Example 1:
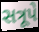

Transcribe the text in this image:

સત્રૂપે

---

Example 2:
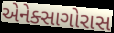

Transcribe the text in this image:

એનેક્સાગોરાસ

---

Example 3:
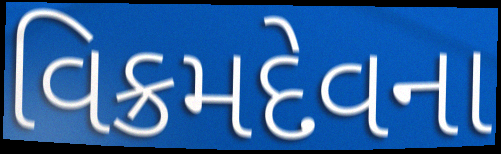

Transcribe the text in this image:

વિક્રમદેવના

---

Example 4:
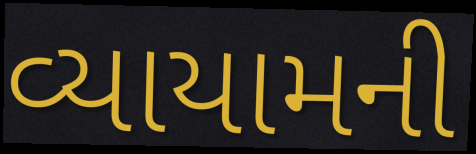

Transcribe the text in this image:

વ્યાયામની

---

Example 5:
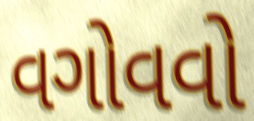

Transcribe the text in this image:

વગોવવો